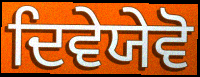
ਦਿਵੇਯੇਵੋ